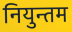
नियुन्तम